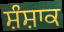
ਸ਼ੰਸ਼ਾਕ